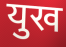
युख